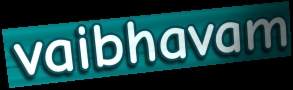
vaibhavam